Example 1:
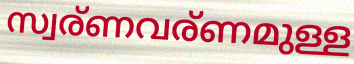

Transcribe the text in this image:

സ്വര്ണവര്ണമുള്ള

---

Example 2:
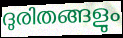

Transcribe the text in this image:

ദുരിതങ്ങളും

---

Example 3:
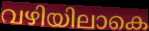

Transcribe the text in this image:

വഴിയിലാകെ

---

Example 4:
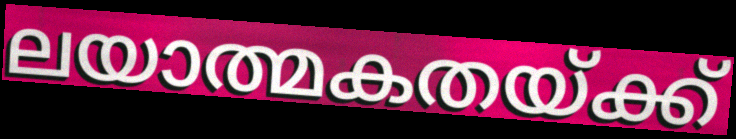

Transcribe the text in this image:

ലയാത്മകതയ്ക്ക്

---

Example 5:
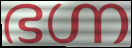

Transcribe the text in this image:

ഭഗ്ന